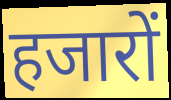
हजारों